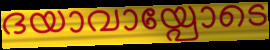
ദയാവായ്പോടെ